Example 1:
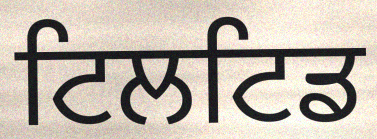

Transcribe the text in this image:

ਟਿਲਟਿਡ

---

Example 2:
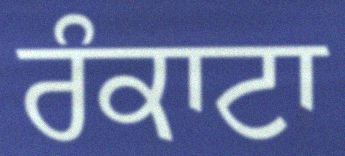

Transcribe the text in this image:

ਰੰਕਾਟਾ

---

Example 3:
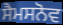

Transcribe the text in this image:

ਸੈਮਸਨੋਵ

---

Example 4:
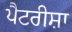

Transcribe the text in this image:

ਪੈਟਰੀਸ਼ਾ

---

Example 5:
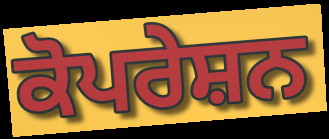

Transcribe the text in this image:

ਕੋਪਰੇਸ਼ਨ